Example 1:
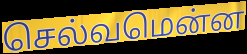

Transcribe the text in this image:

செல்வமென்ன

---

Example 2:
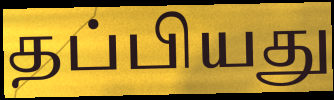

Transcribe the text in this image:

தப்பியது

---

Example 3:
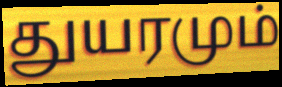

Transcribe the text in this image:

துயரமும்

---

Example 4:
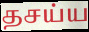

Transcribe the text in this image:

தசய்ய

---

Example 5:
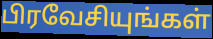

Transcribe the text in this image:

பிரவேசியுங்கள்